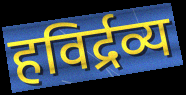
हविर्द्रव्य